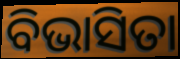
ବିଭାସିତା